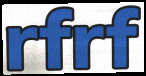
rfrf